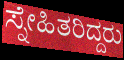
ಸ್ನೇಹಿತರಿದ್ದರು